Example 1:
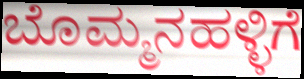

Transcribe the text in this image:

ಬೊಮ್ಮನಹಳ್ಳಿಗೆ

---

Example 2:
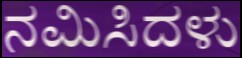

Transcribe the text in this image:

ನಮಿಸಿದಳು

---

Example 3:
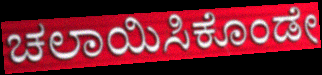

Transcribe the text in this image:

ಚಲಾಯಿಸಿಕೊಂಡೇ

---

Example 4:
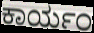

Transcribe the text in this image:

ಕಾರ್ಯಂ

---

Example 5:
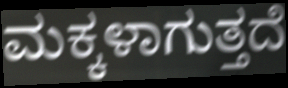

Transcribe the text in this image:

ಮಕ್ಕಳಾಗುತ್ತದೆ